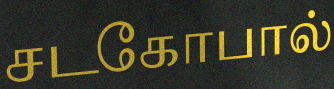
சடகோபால்